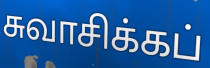
சுவாசிக்கப்